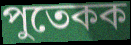
পুতেকক